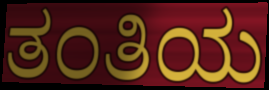
ತಂತಿಯ